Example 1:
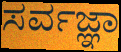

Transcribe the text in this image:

ಸರ್ವಜ್ಞಾ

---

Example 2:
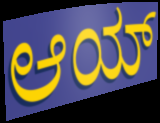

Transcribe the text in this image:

ಆಯ್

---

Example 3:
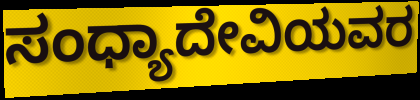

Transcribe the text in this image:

ಸಂಧ್ಯಾದೇವಿಯವರ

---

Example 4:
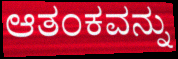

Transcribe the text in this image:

ಆತಂಕವನ್ನು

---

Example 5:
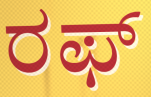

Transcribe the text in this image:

ರಫ್